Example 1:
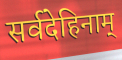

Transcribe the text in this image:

सर्वदेहिनाम्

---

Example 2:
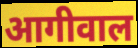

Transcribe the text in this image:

आगीवाल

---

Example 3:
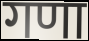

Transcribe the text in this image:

गणा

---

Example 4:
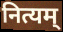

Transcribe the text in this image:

नित्यम्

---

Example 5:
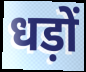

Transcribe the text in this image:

धड़ों